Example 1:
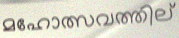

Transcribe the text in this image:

മഹോത്സവത്തില്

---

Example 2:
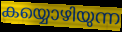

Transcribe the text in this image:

കയ്യൊഴിയുന്ന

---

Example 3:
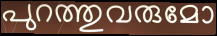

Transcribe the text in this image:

പുറത്തുവരുമോ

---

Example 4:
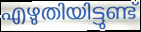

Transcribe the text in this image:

എഴുതിയിട്ടുണ്ട്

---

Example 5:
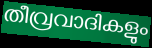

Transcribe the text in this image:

തീവ്രവാദികളും